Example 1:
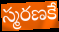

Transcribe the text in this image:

స్మరణకే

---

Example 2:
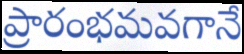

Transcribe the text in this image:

ప్రారంభమవగానే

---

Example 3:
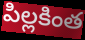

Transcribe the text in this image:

పిల్లకింత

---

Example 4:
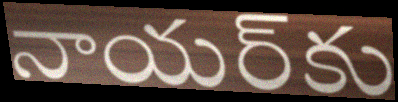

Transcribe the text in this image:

నాయర్‌కు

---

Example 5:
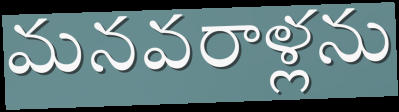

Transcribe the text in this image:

మనవరాళ్లను